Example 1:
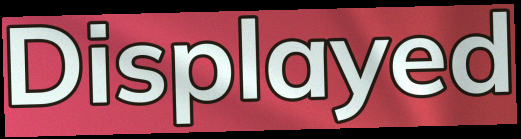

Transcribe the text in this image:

Displayed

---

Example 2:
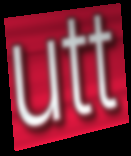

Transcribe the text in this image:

utt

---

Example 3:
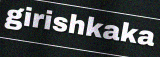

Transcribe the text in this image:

girishkaka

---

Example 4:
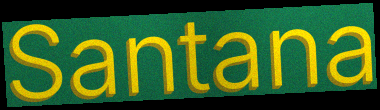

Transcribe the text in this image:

Santana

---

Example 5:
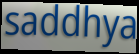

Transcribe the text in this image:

saddhya